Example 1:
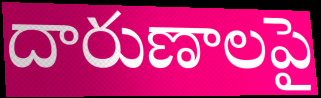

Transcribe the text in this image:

దారుణాలపై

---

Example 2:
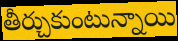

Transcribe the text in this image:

తీర్చుకుంటున్నాయి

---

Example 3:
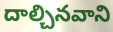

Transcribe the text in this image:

దాల్చినవాని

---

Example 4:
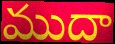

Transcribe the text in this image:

ముదా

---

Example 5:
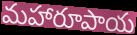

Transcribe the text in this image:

మహారూపాయ